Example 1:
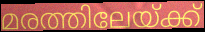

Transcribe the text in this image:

മരത്തിലേയ്ക്ക്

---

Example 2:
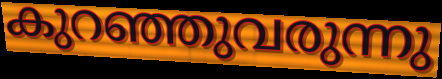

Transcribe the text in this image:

കുറഞ്ഞുവരുന്നു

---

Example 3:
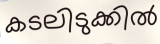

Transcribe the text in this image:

കടലിടുക്കിൽ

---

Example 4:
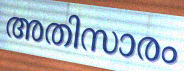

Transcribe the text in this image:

അതിസാരം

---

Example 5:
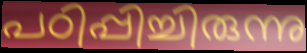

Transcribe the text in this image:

പഠിപ്പിച്ചിരുന്നു